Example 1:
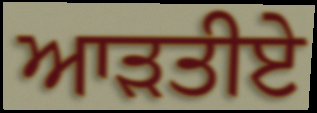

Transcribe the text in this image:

ਆੜਤੀਏ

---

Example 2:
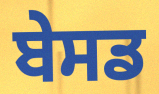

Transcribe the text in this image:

ਬੇਸਡ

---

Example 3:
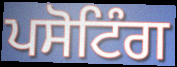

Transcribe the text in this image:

ਪਸੋਟਿੰਗ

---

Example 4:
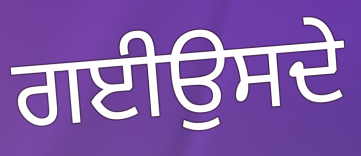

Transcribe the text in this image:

ਗਈਉਸਦੇ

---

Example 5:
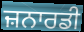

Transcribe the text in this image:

ਜ਼ਨਾਰਡੀ